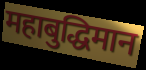
महाबुद्धिमान